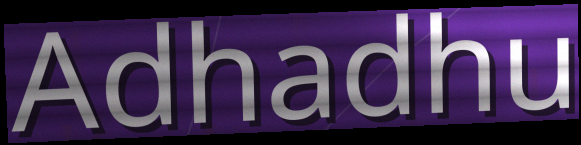
Adhadhu